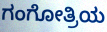
ಗಂಗೋತ್ರಿಯ